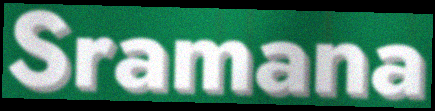
Sramana